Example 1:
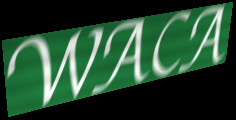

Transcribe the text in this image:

WACA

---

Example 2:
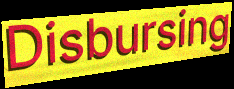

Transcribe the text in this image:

Disbursing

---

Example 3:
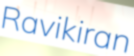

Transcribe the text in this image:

Ravikiran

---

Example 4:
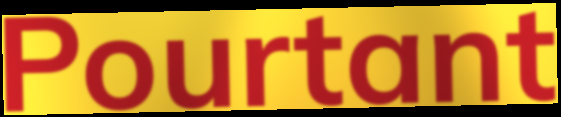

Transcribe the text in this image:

Pourtant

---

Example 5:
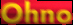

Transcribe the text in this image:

Ohno